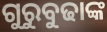
ଗୁରୁବୁଢାଙ୍କ